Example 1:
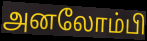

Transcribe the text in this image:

அனலோம்பி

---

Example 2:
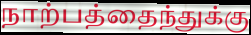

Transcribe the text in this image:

நாற்பத்தைந்துக்கு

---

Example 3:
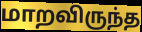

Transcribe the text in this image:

மாறவிருந்த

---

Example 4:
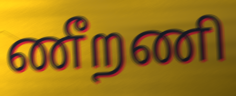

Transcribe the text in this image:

ணீறணி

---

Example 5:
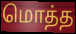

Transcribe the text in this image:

மொத்த